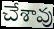
చేశావు